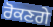
ਰੋਕਣਗੇ